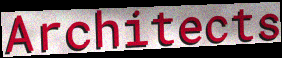
Architects